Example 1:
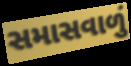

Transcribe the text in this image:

સમાસવાળું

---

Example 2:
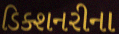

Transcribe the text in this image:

ડિક્શનરીના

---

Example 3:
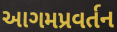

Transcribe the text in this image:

આગમપ્રવર્તન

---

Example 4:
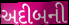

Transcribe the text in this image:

અદીબની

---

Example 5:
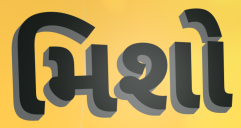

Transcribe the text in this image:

મિશો